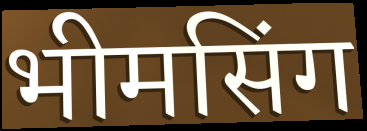
भीमसिंग